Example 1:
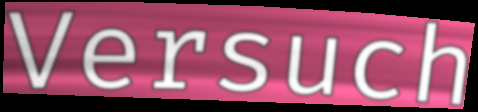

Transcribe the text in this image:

Versuch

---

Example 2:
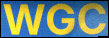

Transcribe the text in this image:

WGC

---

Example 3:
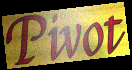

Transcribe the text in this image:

Pivot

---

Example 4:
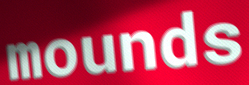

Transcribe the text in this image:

mounds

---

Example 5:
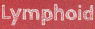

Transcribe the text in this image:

Lymphoid